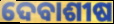
ଦେବାଶୀଷ